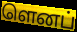
ளெனப்